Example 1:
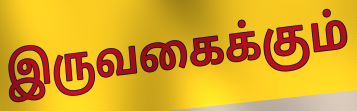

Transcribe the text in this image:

இருவகைக்கும்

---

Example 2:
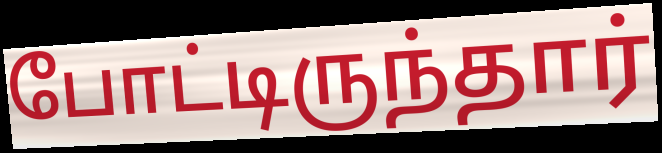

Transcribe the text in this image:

போட்டிருந்தார்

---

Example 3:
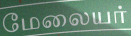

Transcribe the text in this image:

மேலையர்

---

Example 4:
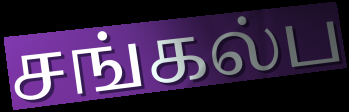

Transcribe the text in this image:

சங்கல்ப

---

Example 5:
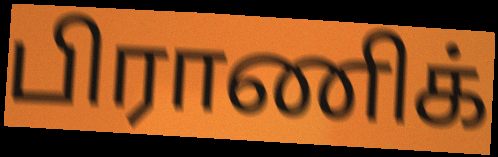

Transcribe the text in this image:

பிராணிக்